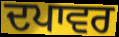
ਦਪਾਵਰ